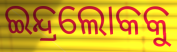
ଇନ୍ଦ୍ରଲୋକକୁ